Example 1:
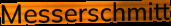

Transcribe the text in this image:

Messerschmitt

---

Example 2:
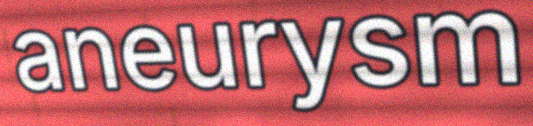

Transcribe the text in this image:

aneurysm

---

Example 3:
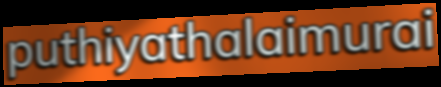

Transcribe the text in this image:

puthiyathalaimurai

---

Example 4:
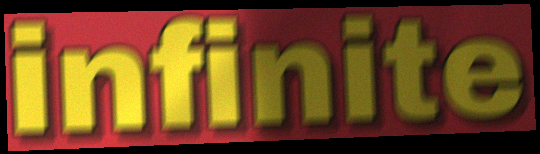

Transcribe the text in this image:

infinite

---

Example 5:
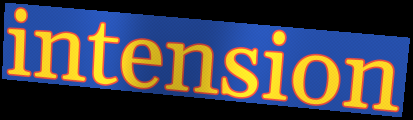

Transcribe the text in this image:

intension